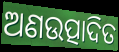
ଅଣଉତ୍ପାଦିତ